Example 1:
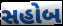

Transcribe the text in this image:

સહોબ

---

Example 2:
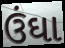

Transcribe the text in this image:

ઉંઘા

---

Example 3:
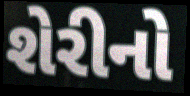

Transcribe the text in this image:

શેરીનો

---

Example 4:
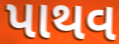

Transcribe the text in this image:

પાથવ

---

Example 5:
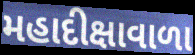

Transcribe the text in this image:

મહાદીક્ષાવાળા